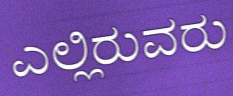
ಎಲ್ಲಿರುವರು